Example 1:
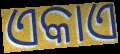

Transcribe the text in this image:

ଏକାଏ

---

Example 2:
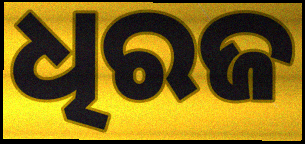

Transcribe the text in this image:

ଧିରଜ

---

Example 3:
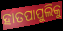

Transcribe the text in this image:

ହାତପାପୁଲିକୁ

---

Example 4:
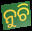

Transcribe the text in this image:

ନୁଚି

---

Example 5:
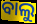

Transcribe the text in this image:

ବାଲୁ